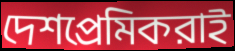
দেশপ্রেমিকরাই